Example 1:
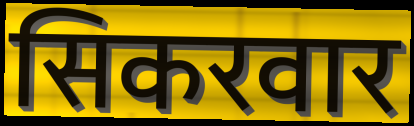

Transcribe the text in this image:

सिकरवार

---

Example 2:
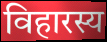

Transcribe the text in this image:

विहारस्य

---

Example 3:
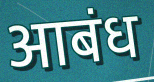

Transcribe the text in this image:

आबंध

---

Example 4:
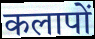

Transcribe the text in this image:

कलापों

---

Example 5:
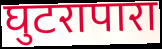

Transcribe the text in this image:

घुटरापारा